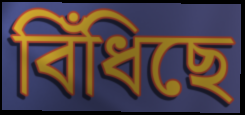
বিঁধিছে